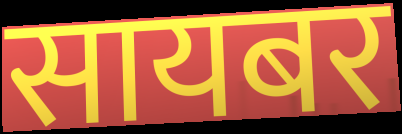
सायबर